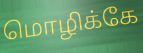
மொழிக்கே